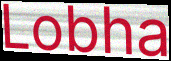
Lobha